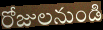
రోజులనుండి